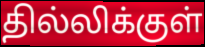
தில்லிக்குள்